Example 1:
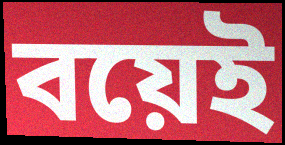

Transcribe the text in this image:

বয়েই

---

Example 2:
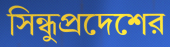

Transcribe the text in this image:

সিন্ধুপ্রদেশের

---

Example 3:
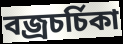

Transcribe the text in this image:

বজ্রচর্চিকা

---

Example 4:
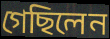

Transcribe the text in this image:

গেছিলেন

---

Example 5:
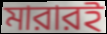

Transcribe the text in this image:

মারারই